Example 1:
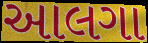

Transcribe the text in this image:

આલગા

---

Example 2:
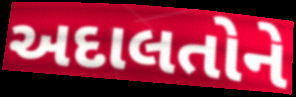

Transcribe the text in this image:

અદાલતોને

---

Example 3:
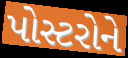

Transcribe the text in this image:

પોસ્ટરોને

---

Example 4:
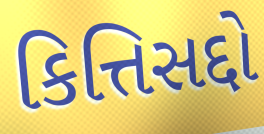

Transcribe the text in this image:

કિત્તિસદ્દો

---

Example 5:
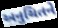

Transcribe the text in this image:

અનુચિતને